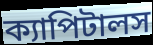
ক্যাপিটালস